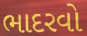
ભાદરવો